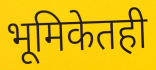
भूमिकेतही